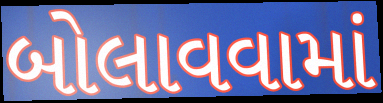
બોલાવવામાં